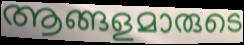
ആങ്ങളമാരുടെ